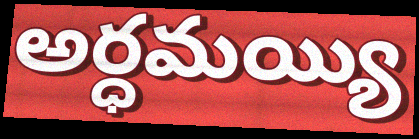
అర్ధమయ్యి